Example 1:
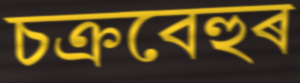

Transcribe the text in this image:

চক্ৰবেহুৰ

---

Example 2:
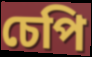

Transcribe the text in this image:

চেপি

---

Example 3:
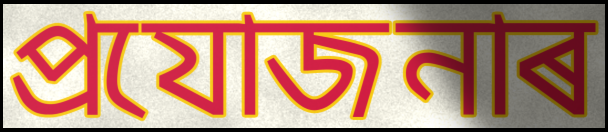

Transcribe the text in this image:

প্ৰযোজনাৰ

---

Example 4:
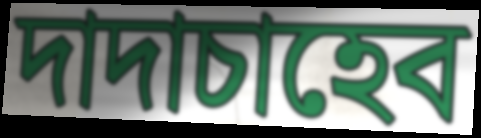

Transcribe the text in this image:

দাদাচাহেব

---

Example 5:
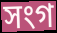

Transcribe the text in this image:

সংগ